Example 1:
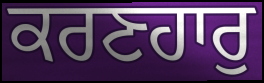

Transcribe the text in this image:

ਕਰਣਹਾਰੁ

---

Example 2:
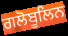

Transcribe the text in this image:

ਗਲੋਬੂਲਿਨ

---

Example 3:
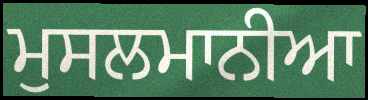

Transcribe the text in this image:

ਮੁਸਲਮਾਨੀਆ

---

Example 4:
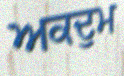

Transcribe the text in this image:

ਅਕਦੁਮ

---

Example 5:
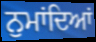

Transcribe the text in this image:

ਨੁਮਾਂਦਿਆਂ